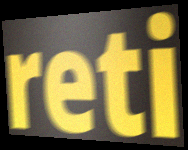
reti